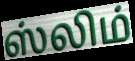
ஸ்லிம்